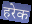
हरेक